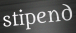
stipend